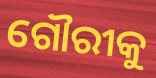
ଗୌରୀକୁ